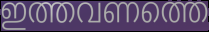
ഇത്തവണത്തെ